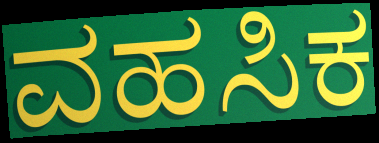
ವಹಸಿಕ